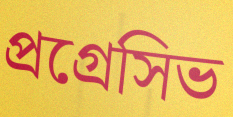
প্রগ্রেসিভ